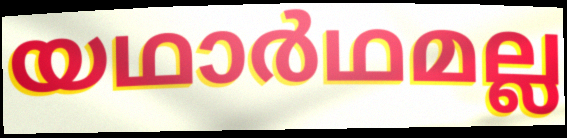
യഥാർഥമല്ല